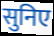
सुनिए